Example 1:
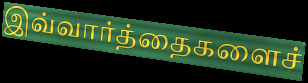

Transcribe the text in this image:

இவ்வார்த்தைகளைச்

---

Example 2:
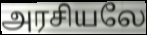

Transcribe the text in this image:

அரசியலே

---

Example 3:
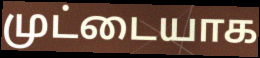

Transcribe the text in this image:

முட்டையாக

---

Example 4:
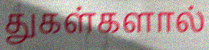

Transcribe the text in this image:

துகள்களால்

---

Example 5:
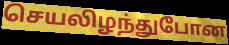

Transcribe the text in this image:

செயலிழந்துபோன